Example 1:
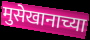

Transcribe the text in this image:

मुसेखानाच्या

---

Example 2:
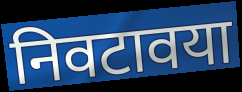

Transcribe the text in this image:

निवटावया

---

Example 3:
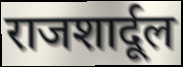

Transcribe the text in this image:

राजशार्दूल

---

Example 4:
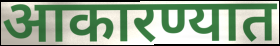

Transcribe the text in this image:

आकारण्यात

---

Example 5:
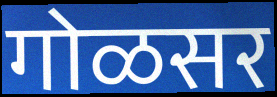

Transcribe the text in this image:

गोळसर